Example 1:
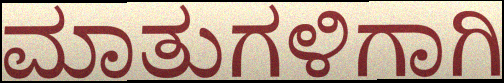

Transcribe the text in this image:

ಮಾತುಗಳಿಗಾಗಿ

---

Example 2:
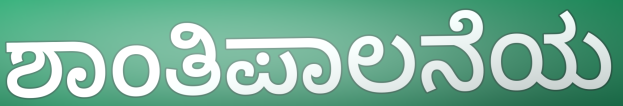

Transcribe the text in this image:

ಶಾಂತಿಪಾಲನೆಯ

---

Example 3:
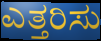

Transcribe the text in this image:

ಎತ್ತರಿಸು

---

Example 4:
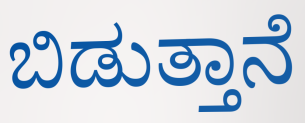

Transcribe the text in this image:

ಬಿಡುತ್ತಾನೆ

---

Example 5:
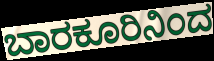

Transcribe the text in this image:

ಬಾರಕೂರಿನಿಂದ